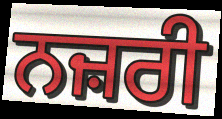
ਨਜ਼ਰੀ